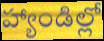
హ్యాండిల్లో